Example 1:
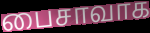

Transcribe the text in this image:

பைசாவாக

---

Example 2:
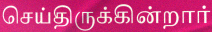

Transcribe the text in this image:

செய்திருக்கின்றார்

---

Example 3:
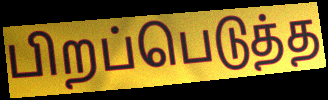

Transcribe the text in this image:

பிறப்பெடுத்த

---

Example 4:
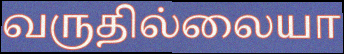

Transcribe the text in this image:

வருதில்லையா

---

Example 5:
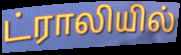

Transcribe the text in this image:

ட்ராலியில்